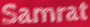
Samrat